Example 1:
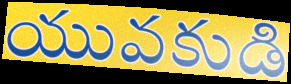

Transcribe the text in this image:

యువకుడి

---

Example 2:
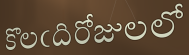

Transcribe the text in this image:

కొలఁదిరోజులలో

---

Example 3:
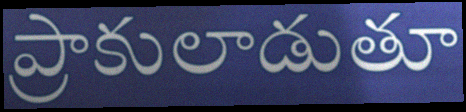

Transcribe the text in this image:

ప్రాకులాడుతూ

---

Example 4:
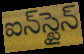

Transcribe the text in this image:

ఐన్‌స్టైన్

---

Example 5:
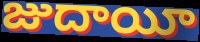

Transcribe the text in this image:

జుదాయీ